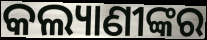
କଲ୍ୟାଣୀଙ୍କର